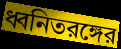
ধ্বনিতরঙ্গের